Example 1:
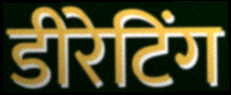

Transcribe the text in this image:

डीरेटिंग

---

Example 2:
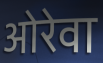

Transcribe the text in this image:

ओरेवा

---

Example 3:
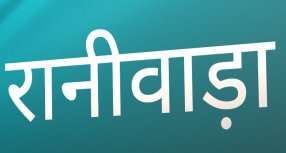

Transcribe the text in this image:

रानीवाड़ा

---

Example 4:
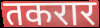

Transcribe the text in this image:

तकरार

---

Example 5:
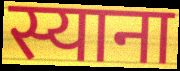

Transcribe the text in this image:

स्याना